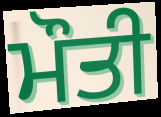
ਮੌਤੀ